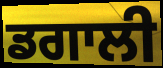
ਡਗਾਲੀ